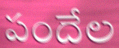
పందేల